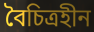
বৈচিত্রহীন